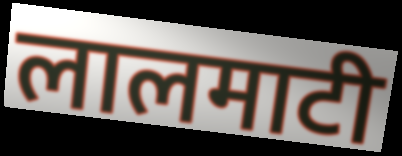
लालमाटी